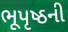
ભૂપૃષ્ઠની